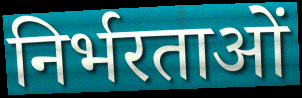
निर्भरताओं